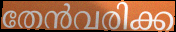
തേൻവരിക്ക